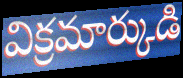
విక్రమార్కుడి